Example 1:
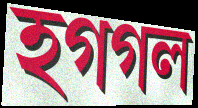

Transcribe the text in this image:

হগগল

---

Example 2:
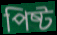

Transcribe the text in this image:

পিষ্ট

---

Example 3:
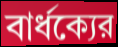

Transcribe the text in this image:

বার্ধক্যের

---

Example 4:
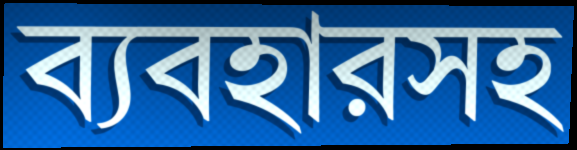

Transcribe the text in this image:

ব্যবহারসহ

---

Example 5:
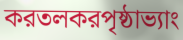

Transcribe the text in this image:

করতলকরপৃষ্ঠাভ্যাং